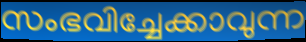
സംഭവിച്ചേക്കാവുന്ന